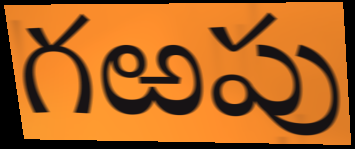
గఱపు